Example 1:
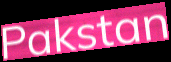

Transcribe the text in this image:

Pakstan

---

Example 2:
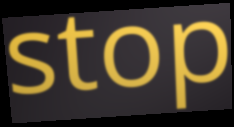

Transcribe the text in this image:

stop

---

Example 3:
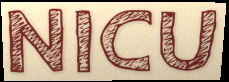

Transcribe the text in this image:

NICU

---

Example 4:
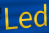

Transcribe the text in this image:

Led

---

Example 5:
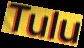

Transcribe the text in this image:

Tulu